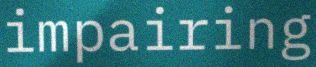
impairing